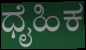
ಧೈಹಿಕ